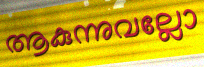
ആകുന്നുവല്ലോ